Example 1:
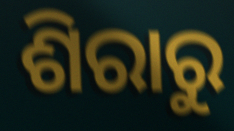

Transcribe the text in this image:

ଶିରାରୁ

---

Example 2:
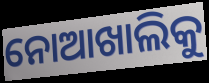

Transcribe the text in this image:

ନୋଆଖାଲିକୁ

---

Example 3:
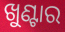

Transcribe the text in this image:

ଖୁଣ୍ଟାର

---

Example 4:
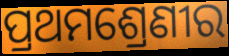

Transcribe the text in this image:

ପ୍ରଥମଶ୍ରେଣୀର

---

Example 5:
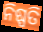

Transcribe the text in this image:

ନିଷ୍ପତି